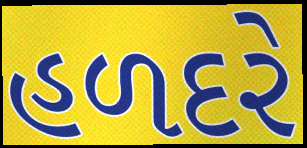
હળદરે